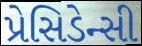
પ્રેસિડેન્સી